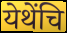
येथेंचि